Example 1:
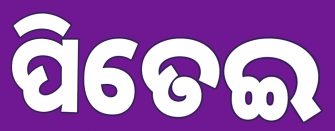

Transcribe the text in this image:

ପିତେଇ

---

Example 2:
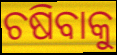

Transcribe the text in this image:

ଚଷିବାକୁ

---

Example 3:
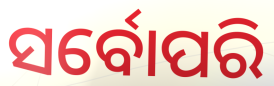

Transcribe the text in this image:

ସର୍ବୋପରି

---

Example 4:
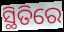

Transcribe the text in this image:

ସ୍ଥିତିରେ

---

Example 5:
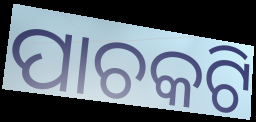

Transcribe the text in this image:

ପାଚକଟି